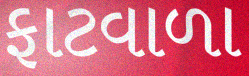
ફાટવાળા